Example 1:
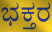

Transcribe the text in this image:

ಭಕ್ತರ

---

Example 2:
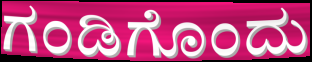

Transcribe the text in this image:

ಗಂಡಿಗೊಂದು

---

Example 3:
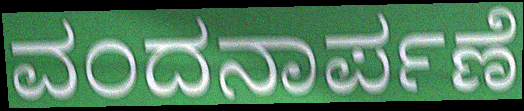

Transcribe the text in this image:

ವಂದನಾರ್ಪಣೆ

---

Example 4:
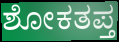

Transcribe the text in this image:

ಶೋಕತಪ್ತ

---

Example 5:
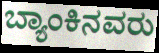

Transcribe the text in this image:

ಬ್ಯಾಂಕಿನವರು